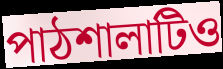
পাঠশালাটিও